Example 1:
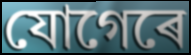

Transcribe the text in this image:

যোগেৰে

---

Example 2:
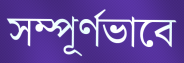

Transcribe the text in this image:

সম্পূৰ্ণভাবে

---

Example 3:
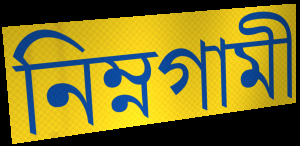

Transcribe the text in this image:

নিম্নগামী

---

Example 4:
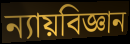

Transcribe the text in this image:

ন্যায়বিজ্ঞান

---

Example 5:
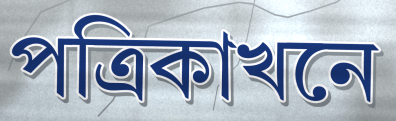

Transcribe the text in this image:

পত্ৰিকাখনে